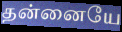
தன்னையே